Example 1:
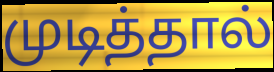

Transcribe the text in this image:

முடித்தால்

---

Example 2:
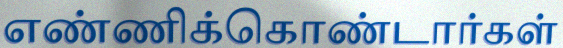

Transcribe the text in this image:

எண்ணிக்கொண்டார்கள்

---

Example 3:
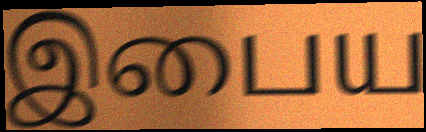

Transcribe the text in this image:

இபைய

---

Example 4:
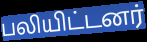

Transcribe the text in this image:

பலியிட்டனர்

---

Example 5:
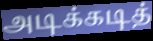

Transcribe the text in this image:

அடிக்கடித்